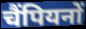
चैंपियनों